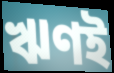
ঋণই